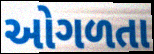
ઓગળતા